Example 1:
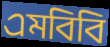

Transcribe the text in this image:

এমবিবি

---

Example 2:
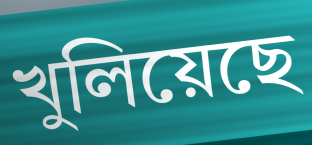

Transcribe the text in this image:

খুলিয়েছে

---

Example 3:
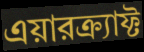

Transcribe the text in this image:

এয়ারক্র্যাফ্ট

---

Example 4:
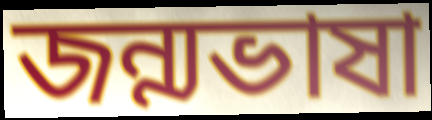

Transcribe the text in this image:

জন্মভাষা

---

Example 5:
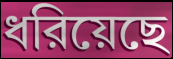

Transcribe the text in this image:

ধরিয়েছে